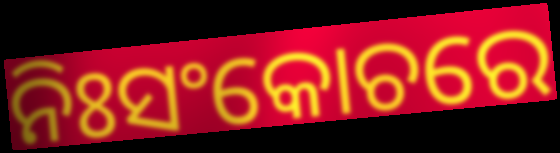
ନିଃସଂକୋଚରେ